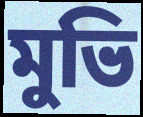
মুভি